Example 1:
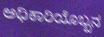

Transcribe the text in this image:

ಅಧಿಕಾರಿಯೊಬ್ಬನ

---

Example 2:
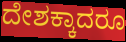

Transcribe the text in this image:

ದೇಶಕ್ಕಾದರೂ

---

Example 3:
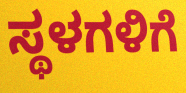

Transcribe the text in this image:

ಸ್ಥಳಗಳಿಗೆ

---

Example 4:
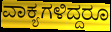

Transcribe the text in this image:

ವಾಕ್ಯಗಳಿದ್ದರೂ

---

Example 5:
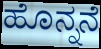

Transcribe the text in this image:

ಹೊನ್ನನೆ